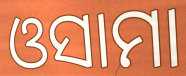
ଓସାମା